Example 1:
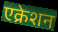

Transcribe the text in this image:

एक्रेशन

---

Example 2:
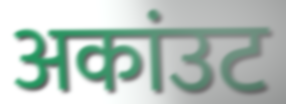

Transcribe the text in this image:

अकांउट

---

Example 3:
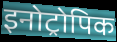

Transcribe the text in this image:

इनोट्रोपिक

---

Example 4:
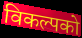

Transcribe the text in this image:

विकल्पको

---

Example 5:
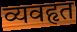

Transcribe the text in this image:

व्यवहृत